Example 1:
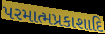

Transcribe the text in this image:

પરમાત્મપ્રકાશાદિ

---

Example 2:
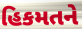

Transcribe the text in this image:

હિકમતને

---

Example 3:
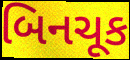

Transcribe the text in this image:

બિનચૂક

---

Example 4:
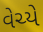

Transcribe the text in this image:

વેચ્યે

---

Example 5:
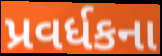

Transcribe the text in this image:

પ્રવર્ધકના